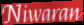
Niwaran